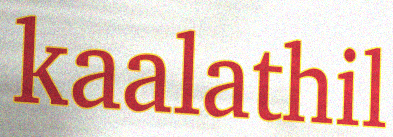
kaalathil